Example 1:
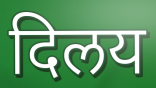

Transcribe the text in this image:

दिलय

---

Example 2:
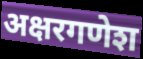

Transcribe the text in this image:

अक्षरगणेश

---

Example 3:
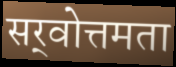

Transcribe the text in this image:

सर्वोत्तमता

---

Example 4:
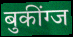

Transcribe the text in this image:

बुकींग्ज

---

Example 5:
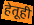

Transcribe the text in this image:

हेतूही